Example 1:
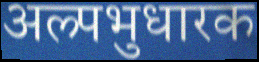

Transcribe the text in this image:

अल्पभुधारक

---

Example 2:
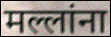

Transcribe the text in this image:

मल्लांना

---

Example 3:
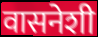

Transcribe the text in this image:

वासनेशी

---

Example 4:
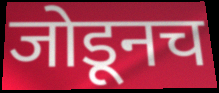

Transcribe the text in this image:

जोडूनच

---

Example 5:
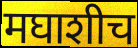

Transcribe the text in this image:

मघाशीच